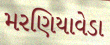
મરણિયાવેડા